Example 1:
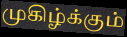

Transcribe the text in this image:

முகிழ்க்கும்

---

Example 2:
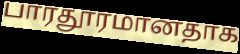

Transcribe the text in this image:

பாரதூரமானதாக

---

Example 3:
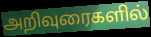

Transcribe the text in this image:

அறிவுரைகளில்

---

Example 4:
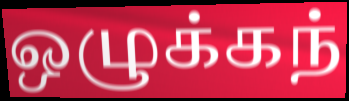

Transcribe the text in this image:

ஒழுக்கந்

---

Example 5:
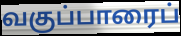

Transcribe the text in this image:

வகுப்பாரைப்